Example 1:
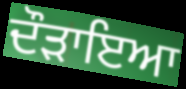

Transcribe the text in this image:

ਦੌੜਾਇਆ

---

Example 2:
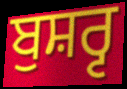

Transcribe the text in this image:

ਬੁਸ਼ਰ੍ਟ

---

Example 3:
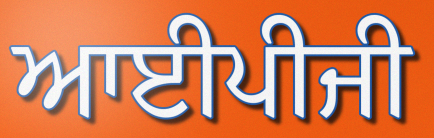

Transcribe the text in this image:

ਆਈਪੀਜੀ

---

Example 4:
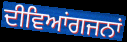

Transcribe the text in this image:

ਦੀਵਿਆਂਗਜਨਾਂ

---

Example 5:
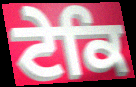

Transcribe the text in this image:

ਟੇਕਿ